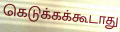
கெடுக்கக்கூடாது